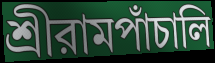
শ্রীরামপাঁচালি